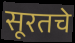
सूरतचे